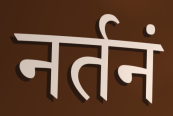
नर्तनं